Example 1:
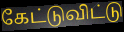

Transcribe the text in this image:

கேட்டுவிட்டு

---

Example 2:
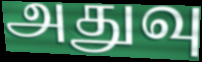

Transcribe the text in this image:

அதுவு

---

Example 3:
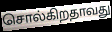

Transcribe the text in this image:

சொல்கிறதாவது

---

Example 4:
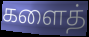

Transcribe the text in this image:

களைத்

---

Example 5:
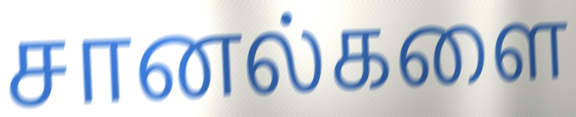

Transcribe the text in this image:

சானல்களை